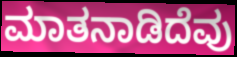
ಮಾತನಾಡಿದೆವು